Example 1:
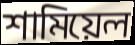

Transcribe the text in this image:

শামিয়েল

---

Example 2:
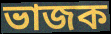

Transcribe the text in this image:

ভাজক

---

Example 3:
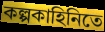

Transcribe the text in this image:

কল্পকাহিনিতে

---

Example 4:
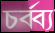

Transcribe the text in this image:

চর্ব্ব্য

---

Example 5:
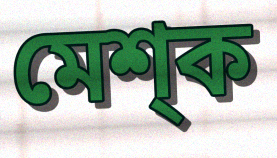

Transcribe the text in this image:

মেশ্ক